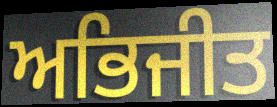
ਅਭਿਜੀਤ